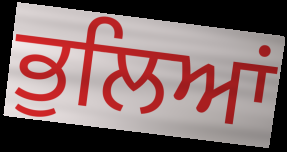
ਭੁਲਿਆਂ